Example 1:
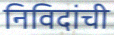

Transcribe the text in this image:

निविदांची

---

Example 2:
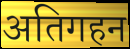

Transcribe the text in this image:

अतिगहन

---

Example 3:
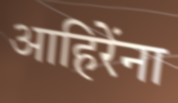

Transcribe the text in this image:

आहिरेंना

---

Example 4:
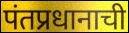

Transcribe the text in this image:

पंतप्रधानाची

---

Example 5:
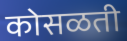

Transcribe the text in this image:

कोसळती